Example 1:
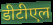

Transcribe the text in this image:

डीटीएल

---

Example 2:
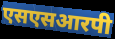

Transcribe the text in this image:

एसएसआरपी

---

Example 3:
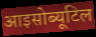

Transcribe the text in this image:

आइसोब्यूटिल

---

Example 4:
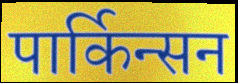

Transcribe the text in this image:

पार्किन्सन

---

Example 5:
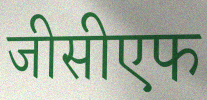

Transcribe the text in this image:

जीसीएफ